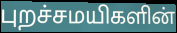
புறச்சமயிகளின்